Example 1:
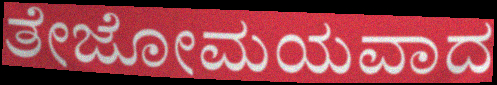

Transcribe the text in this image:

ತೇಜೋಮಯವಾದ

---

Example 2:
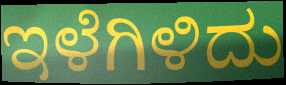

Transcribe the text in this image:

ಇಳೆಗಿಳಿದು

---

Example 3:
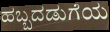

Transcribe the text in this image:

ಹಬ್ಬದಡುಗೆಯ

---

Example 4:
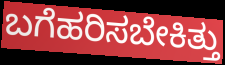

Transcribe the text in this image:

ಬಗೆಹರಿಸಬೇಕಿತ್ತು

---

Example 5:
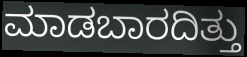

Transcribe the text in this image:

ಮಾಡಬಾರದಿತ್ತು